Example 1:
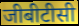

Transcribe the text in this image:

जीबीटीसी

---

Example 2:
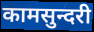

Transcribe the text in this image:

कामसुन्दरी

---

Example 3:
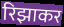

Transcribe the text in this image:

रिझाकर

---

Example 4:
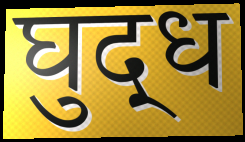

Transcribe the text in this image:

घुद्ध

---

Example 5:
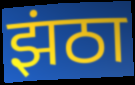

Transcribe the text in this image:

झंठा